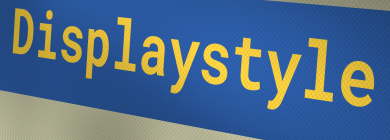
Displaystyle